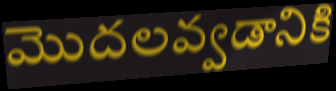
మొదలవ్వడానికి